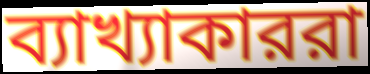
ব্যাখ্যাকাররা